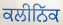
ਕਲੀਨਿੱਕ